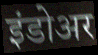
इंडोअर